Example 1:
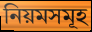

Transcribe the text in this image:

নিয়মসমূহ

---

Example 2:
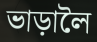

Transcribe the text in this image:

ভাড়ালৈ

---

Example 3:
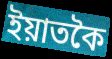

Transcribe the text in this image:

ইয়াতকৈ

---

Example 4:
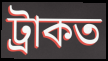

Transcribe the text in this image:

ট্ৰাকত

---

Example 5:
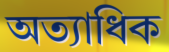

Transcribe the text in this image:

অত্যাধিক